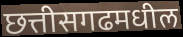
छत्तीसगढमधील